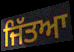
ਜਿੱਤਆ